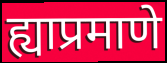
ह्याप्रमाणे